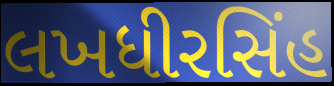
લખધીરસિંહ